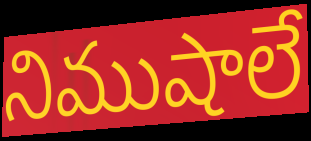
నిముషాలే